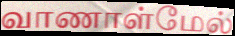
வாணாள்மேல்